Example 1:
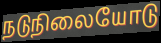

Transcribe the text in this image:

நடுநிலையோடு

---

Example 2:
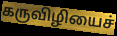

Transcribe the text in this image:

கருவிழியைச்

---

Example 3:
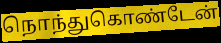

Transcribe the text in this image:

நொந்துகொண்டேன்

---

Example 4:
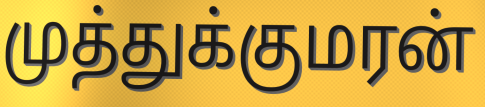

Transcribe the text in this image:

முத்துக்குமரன்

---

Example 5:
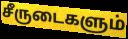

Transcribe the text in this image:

சீருடைகளும்